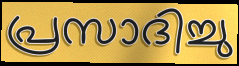
പ്രസാദിച്ചു